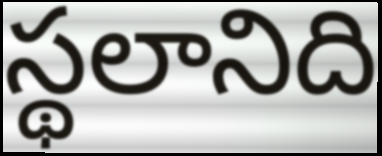
స్థలానిది